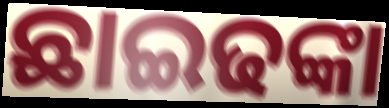
ଛାଇଢଙ୍କା